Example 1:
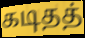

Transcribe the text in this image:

கடிதத்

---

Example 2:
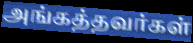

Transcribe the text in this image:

அங்கத்தவர்கள்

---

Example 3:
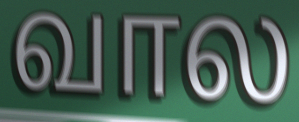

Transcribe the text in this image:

வால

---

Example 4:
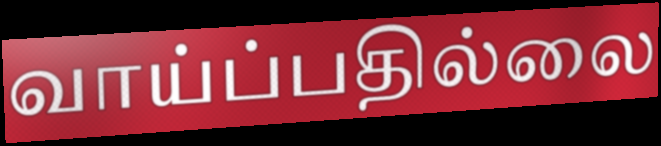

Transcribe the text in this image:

வாய்ப்பதில்லை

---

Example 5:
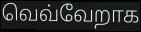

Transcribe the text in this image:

வெவ்வேறாக